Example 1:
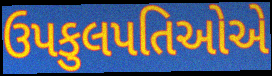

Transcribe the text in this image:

ઉપકુલપતિઓએ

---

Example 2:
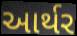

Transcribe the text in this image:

આર્થર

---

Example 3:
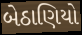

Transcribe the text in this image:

બેઠાણિયો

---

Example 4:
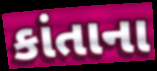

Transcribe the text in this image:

કાંતાના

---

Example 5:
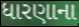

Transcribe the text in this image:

ધારણાના